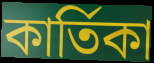
কাৰ্তিকা